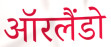
ऑरलैंडो